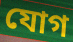
যোগ